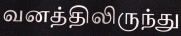
வனத்திலிருந்து